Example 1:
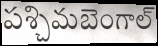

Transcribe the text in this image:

పశ్చిమబెంగాల్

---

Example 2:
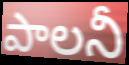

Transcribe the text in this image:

పాలనీ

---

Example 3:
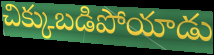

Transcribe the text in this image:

చిక్కుబడిపోయాడు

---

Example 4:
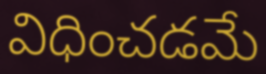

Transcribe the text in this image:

విధించడమే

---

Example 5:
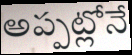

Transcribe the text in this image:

అప్పట్లోనే